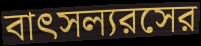
বাৎসল্যরসের